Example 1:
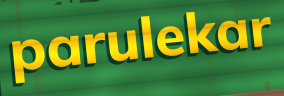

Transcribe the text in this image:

parulekar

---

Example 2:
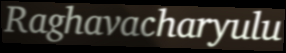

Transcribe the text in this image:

Raghavacharyulu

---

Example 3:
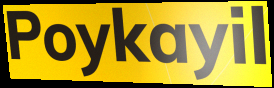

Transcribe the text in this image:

Poykayil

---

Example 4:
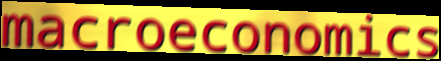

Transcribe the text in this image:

macroeconomics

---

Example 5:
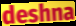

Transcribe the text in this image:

deshna